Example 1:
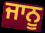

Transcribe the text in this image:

ਜਾਨੂ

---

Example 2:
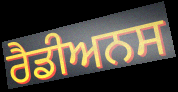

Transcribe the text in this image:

ਰੈਡੀਅਨਸ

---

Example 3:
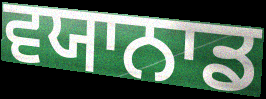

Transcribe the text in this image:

ਵਯਾਨਾਡ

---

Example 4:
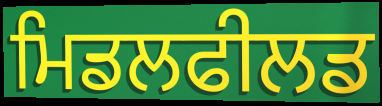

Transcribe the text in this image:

ਮਿਡਲਫੀਲਡ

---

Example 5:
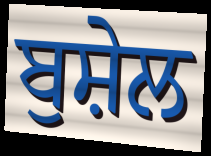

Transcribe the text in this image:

ਬੁਸ਼ੇਲ